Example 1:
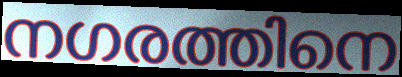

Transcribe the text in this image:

നഗരത്തിനെ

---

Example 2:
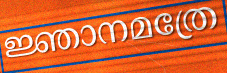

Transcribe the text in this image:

ജ്ഞാനമത്രേ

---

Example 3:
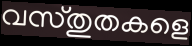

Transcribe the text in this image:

വസ്തുതകളെ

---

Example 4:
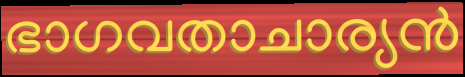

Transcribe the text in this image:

ഭാഗവതാചാര്യൻ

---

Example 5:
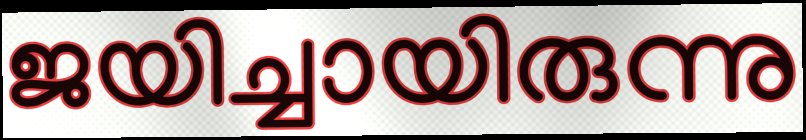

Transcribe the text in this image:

ജയിച്ചായിരുന്നു